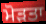
ਮੋੜਤਾ